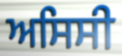
ਅਸਿਸੀ